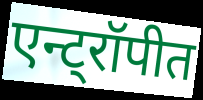
एन्ट्रॉपीत